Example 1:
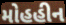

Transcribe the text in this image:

મોહહીન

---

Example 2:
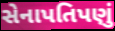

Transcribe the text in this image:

સેનાપતિપણું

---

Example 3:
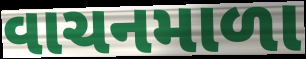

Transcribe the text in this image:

વાચનમાળા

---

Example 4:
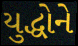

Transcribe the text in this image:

યુદ્ધોને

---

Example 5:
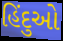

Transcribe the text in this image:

હિંદુઓ